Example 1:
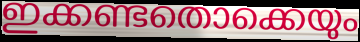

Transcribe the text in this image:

ഇക്കണ്ടതൊക്കെയും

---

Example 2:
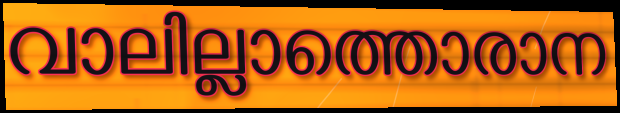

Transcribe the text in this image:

വാലില്ലാത്തൊരാന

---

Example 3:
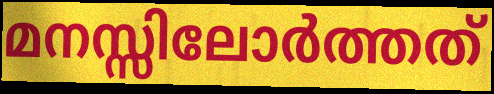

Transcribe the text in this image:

മനസ്സിലോർത്തത്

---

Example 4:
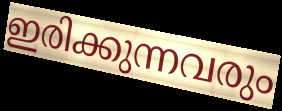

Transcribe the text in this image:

ഇരിക്കുന്നവരും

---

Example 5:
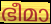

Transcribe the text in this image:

ഭീമാ